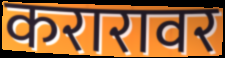
करारावर